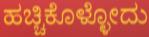
ಹಚ್ಚಿಕೊಳ್ಳೋದು